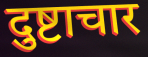
दुष्टाचार